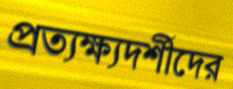
প্রত্যক্ষ্যদর্শীদের